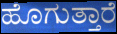
ಹೊಗುತ್ತಾರೆ